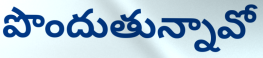
పొందుతున్నావో